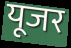
यूजर